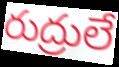
రుద్రులే